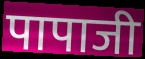
पापाजी